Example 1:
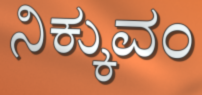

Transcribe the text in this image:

ನಿಕ್ಕುವಂ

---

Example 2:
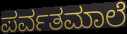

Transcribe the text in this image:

ಪರ್ವತಮಾಲೆ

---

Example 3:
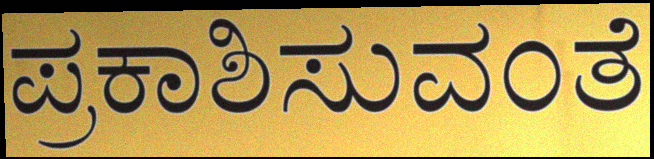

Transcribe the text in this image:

ಪ್ರಕಾಶಿಸುವಂತೆ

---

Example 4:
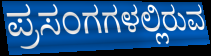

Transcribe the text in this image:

ಪ್ರಸಂಗಗಳಲ್ಲಿರುವ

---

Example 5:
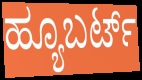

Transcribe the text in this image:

ಹ್ಯೂಬರ್ಟ್